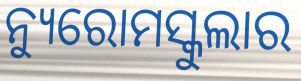
ନ୍ୟୁରୋମସ୍କୁଲାର